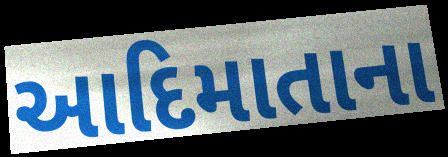
આદિમાતાના